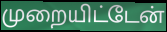
முறையிட்டேன்